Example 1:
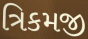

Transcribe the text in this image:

ત્રિકમજી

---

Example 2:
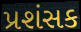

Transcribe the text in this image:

પ્રશંસક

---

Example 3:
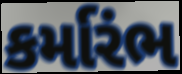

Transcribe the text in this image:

કર્મારંભ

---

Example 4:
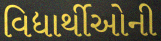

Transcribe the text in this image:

વિદ્યાર્થીઓની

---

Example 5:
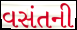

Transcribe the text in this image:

વસંતની